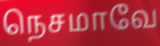
நெசமாவே